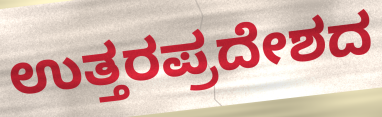
ಉತ್ತರಪ್ರದೇಶದ